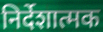
निर्देशात्मक